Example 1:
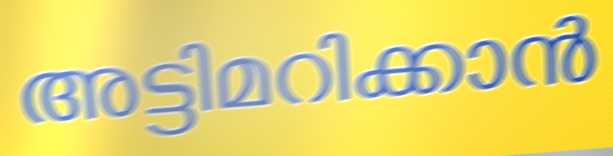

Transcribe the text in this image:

അട്ടിമറിക്കാൻ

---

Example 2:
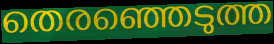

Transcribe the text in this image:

തെരഞ്ഞെടുത്ത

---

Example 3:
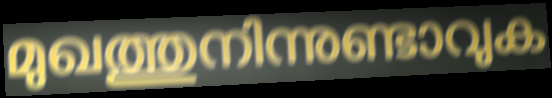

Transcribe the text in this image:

മുഖത്തുനിന്നുണ്ടാവുക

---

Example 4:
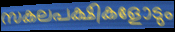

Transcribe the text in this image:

സകലപക്ഷികളോടും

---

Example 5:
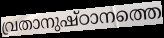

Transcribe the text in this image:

വ്രതാനുഷ്ഠാനത്തെ